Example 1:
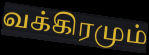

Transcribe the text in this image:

வக்கிரமும்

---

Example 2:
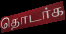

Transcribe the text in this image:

தொடர்க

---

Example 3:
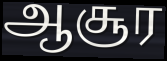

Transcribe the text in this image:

ஆசூர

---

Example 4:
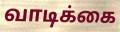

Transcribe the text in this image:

வாடிக்கை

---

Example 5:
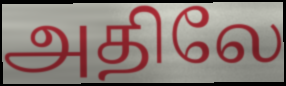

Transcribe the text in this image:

அதிலே